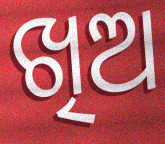
ଖିଅ